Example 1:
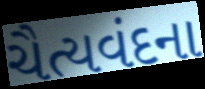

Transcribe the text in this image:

ચૈત્યવંદના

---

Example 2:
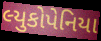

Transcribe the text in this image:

લ્યુકોપેનિયા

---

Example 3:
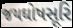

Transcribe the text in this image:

જયઘોષસૂરિ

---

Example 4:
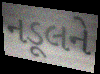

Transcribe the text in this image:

નડૂલને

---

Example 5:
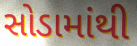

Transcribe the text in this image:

સોડામાંથી